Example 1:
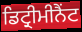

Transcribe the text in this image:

ਡਿਟ੍ਰੀਮੀਨੈਂਟ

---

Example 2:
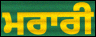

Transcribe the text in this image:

ਮਰਾਰੀ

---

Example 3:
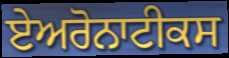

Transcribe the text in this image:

ਏਅਰੋਨਾਟੀਕਸ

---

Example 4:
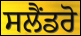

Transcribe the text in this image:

ਸਲੈਂਡਰੋ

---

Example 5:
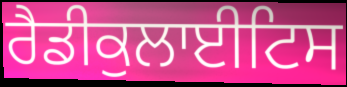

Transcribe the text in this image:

ਰੈਡੀਕੁਲਾਈਟਿਸ